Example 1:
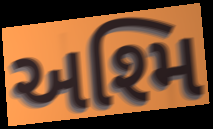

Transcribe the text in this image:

અશ્મિ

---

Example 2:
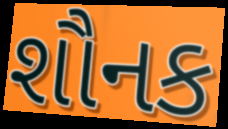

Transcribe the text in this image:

શૌનક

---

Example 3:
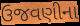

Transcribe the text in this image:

ઉજવણીના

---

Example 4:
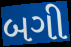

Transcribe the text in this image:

બગી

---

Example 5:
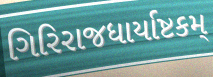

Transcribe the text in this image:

ગિરિરાજધાર્યાષ્ટકમ્